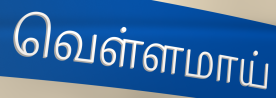
வெள்ளமாய்